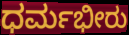
ಧರ್ಮಭೀರು